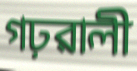
গঢ়ৱালী